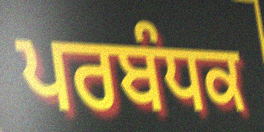
ਪਰਬੰਧਕ